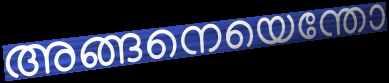
അങ്ങനെയെന്തോ